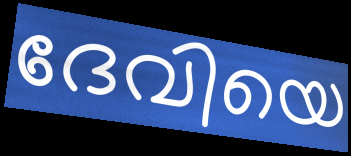
ദേവിയെ